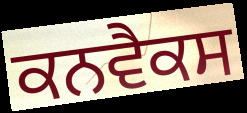
ਕਨਵੈਕਸ